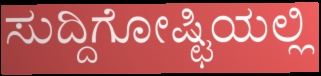
ಸುದ್ದಿಗೋಷ್ಟಿಯಲ್ಲಿ